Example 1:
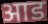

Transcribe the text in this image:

आड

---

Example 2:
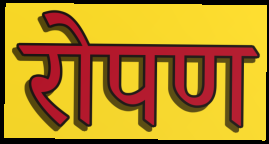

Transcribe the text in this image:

रोपण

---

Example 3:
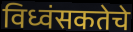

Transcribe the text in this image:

विध्वंसकतेचे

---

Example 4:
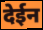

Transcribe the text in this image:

देईन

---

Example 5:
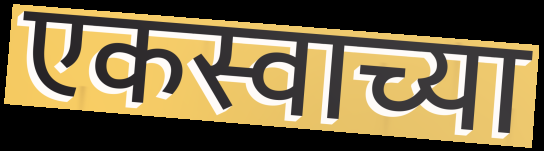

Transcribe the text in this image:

एकस्वाच्या